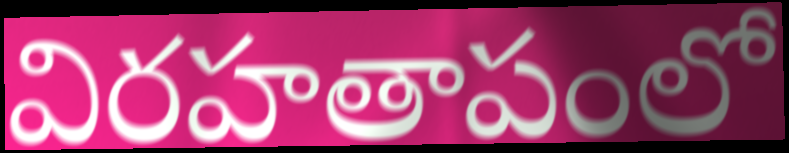
విరహతాపంలో